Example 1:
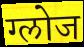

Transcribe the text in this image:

ग्लोज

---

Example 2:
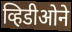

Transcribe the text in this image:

व्हिडीओने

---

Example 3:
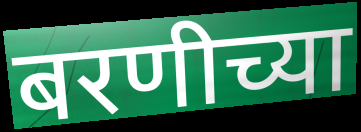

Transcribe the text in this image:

बरणीच्या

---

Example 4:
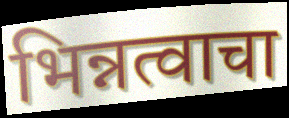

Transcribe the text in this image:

भिन्नत्वाचा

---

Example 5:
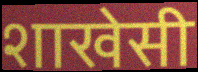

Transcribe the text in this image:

शाखेसी